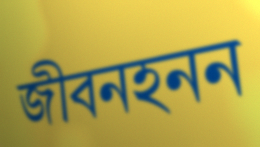
জীবনহনন